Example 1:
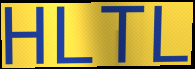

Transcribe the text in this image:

HLTL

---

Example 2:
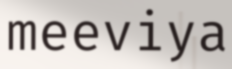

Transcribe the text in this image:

meeviya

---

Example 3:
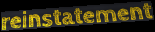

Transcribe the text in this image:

reinstatement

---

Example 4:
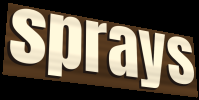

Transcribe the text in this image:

sprays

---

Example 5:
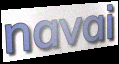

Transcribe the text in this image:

navai